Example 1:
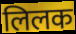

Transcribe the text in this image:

लिलक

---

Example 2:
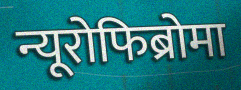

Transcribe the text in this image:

न्यूरोफिब्रोमा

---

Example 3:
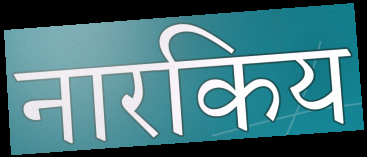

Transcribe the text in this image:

नारकिय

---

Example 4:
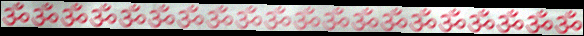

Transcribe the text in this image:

ॐॐॐॐॐॐॐॐॐॐॐॐॐॐॐॐॐॐॐॐ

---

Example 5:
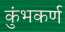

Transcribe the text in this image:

कुंभकर्ण